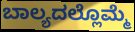
ಬಾಲ್ಯದಲ್ಲೊಮ್ಮೆ